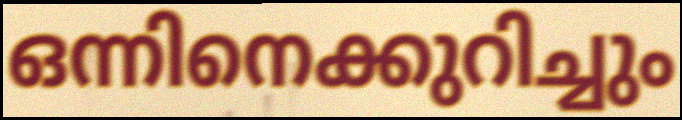
ഒന്നിനെക്കുറിച്ചും